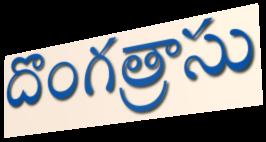
దొంగత్రాసు